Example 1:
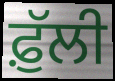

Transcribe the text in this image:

ਫ਼ੁੱਲੀ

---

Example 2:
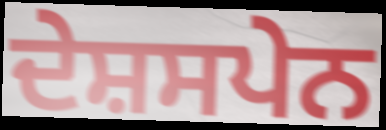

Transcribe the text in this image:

ਦੇਸ਼ਸਪੇਨ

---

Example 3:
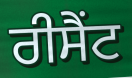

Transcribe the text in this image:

ਰੀਸੈਂਟ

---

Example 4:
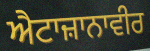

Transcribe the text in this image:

ਐਟਾਜ਼ਾਨਾਵੀਰ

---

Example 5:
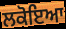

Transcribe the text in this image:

ਲਕੋਇਆ